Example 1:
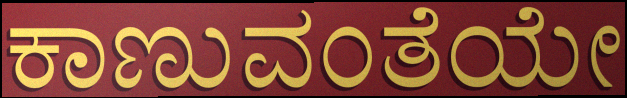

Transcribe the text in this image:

ಕಾಣುವಂತೆಯೇ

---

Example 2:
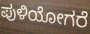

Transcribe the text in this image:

ಪುಳಿಯೋಗರೆ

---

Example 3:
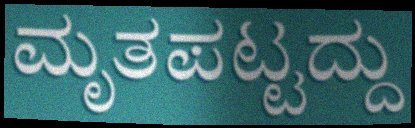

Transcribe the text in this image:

ಮೃತಪಟ್ಟದ್ದು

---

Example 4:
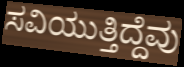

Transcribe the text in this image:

ಸವಿಯುತ್ತಿದ್ದೆವು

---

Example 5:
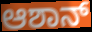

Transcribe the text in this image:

ಆಶಾನ್